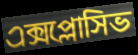
এক্সপ্লোসিভ